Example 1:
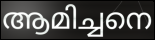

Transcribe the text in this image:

ആമിച്ചനെ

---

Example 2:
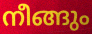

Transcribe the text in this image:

നീങ്ങും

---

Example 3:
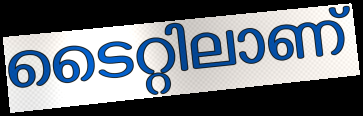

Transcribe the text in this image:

ടൈറ്റിലാണ്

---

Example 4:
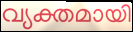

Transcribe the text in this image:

വ്യക്തമായി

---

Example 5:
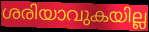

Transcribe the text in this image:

ശരിയാവുകയില്ല